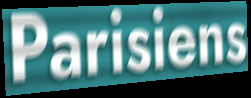
Parisiens